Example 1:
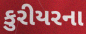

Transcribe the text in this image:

કુરીયરના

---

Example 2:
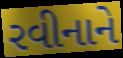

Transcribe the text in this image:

રવીનાને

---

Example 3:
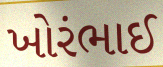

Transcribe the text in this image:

ખોરંભાઈ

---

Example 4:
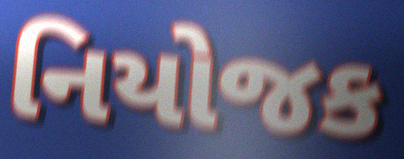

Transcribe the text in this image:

નિયોજક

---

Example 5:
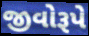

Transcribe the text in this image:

જીવોરૂપે